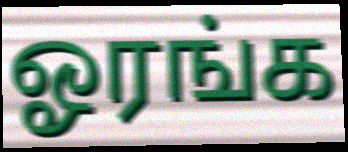
ஓரங்க